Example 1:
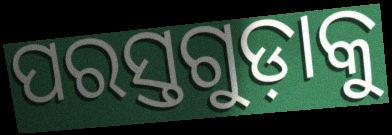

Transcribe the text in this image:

ପରସ୍ତଗୁଡ଼ାକୁ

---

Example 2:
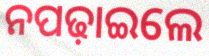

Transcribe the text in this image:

ନପଢ଼ାଇଲେ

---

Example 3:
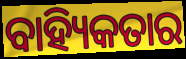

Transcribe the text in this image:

ବାହ୍ୟିକତାର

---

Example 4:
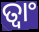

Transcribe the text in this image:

ତ୍ଵାଂ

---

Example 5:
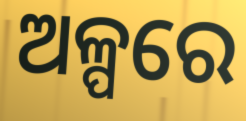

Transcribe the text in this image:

ଅଳ୍ପରେ